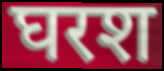
घरश